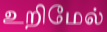
உறிமேல்